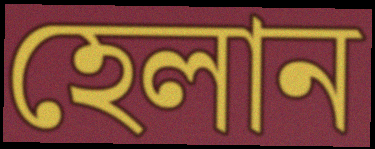
হেলান